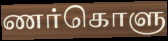
ணர்கொளு